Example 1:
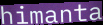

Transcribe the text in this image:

himanta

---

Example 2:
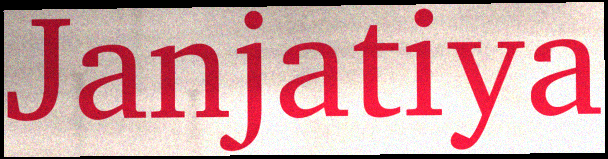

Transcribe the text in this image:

Janjatiya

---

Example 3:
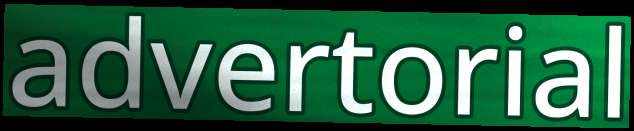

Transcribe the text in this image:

advertorial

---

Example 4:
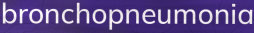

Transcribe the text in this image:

bronchopneumonia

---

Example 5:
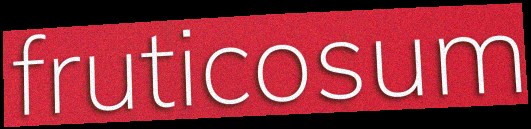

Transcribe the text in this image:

fruticosum